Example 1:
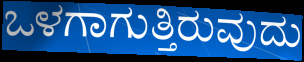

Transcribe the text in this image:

ಒಳಗಾಗುತ್ತಿರುವುದು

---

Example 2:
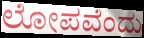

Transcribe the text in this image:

ಲೋಪವೆಂದು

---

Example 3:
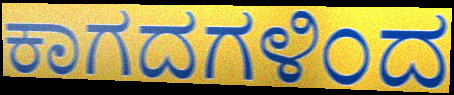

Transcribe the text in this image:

ಕಾಗದಗಳಿಂದ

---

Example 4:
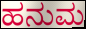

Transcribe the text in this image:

ಹನುಮ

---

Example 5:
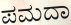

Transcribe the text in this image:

ಪಮದಾ